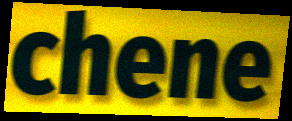
chene